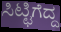
ಸಿಟ್ಟಿಗೆದ್ದ